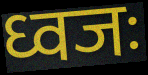
ध्वजः